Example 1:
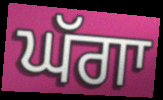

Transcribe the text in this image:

ਘੱਗਾ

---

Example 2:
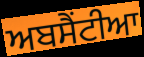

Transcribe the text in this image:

ਅਬਸੈਂਟੀਆ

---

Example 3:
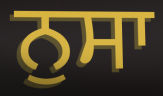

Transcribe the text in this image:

ਨੁਸਾ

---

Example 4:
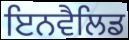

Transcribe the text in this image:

ਇਨਵੈਲਿਡ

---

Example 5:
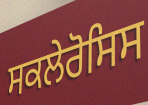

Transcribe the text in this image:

ਸਕਲੇਰੋਸਿਸ